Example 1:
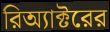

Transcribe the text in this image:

রিঅ্যাক্টরের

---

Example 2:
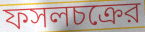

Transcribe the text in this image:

ফসলচক্রের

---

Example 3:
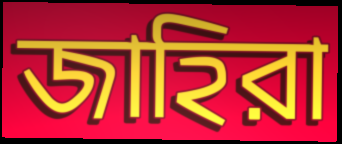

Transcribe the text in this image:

জাহিরা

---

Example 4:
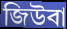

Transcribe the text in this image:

জিউবা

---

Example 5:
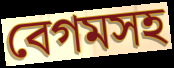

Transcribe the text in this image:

বেগমসহ